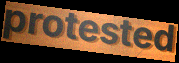
protested